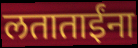
लताताईंना